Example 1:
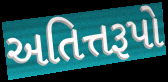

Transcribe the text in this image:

અતિત્તરૂપો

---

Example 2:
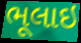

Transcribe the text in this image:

ભૂલાઇ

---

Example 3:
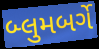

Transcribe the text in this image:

બ્લુમબર્ગે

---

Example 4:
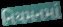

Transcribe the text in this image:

નિયમનમાં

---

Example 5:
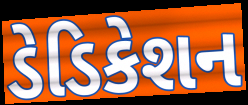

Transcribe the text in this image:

ડેડિકેશન